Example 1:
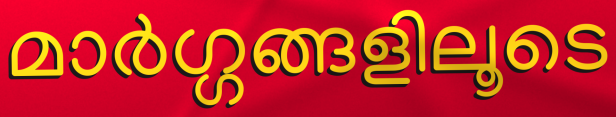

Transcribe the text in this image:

മാർഗ്ഗങ്ങളിലൂടെ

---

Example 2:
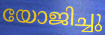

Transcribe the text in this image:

യോജിച്ചു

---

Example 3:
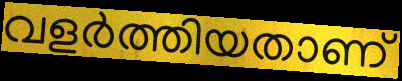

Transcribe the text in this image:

വളർത്തിയതാണ്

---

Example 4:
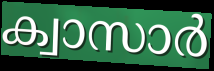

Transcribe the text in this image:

ക്വാസാർ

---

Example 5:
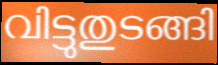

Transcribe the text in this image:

വിട്ടുതുടങ്ങി